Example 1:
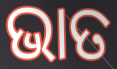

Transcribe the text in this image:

ଭାତ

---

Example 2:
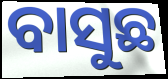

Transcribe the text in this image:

ବାସୁଛ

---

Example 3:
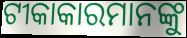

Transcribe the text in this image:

ଟୀକାକାରମାନଙ୍କୁ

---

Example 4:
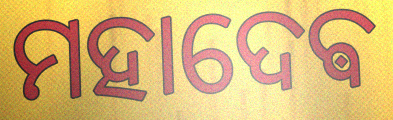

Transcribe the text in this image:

ମହାଦେଵ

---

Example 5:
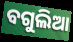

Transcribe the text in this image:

ବଗୁଲିଆ